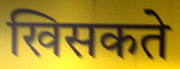
खिसकते